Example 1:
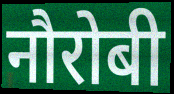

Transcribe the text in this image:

नौरोबी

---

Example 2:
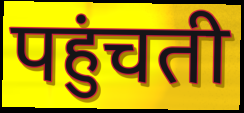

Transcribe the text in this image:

पहुंचती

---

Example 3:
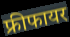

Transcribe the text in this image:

फ्रीफायर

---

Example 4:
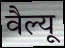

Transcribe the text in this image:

वैल्यू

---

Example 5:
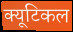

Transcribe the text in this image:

क्यूटिकल